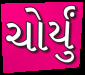
ચોર્યું